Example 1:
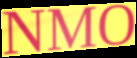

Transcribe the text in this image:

NMO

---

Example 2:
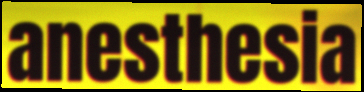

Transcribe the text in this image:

anesthesia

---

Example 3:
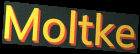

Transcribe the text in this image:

Moltke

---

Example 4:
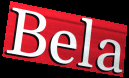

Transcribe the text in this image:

Bela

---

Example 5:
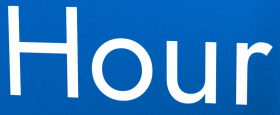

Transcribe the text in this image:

Hour